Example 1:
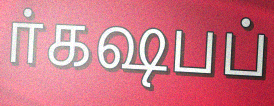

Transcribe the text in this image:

ர்கஷபப்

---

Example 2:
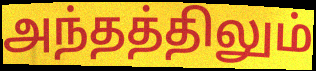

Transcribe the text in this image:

அந்தத்திலும்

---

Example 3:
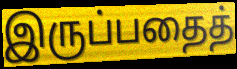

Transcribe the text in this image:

இருப்பதைத்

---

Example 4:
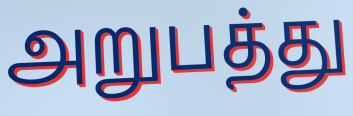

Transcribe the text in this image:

அறுபத்து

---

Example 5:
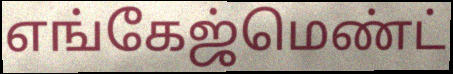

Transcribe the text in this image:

எங்கேஜ்மெண்ட்